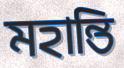
মহান্তি